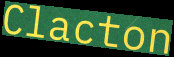
Clacton